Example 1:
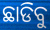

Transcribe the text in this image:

ଛାଡିବୁ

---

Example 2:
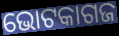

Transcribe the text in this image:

ଭୋଟକାଗଜ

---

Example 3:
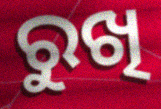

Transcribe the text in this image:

ରୁଖି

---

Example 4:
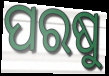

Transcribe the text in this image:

ପରଷୁ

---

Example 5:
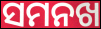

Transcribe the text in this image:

ସମନଖ